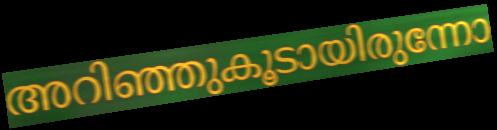
അറിഞ്ഞുകൂടായിരുന്നോ